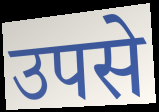
उपसे